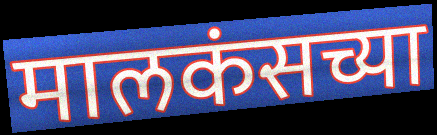
मालकंसच्या